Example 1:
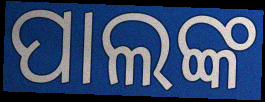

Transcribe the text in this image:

ପାଲଙ୍କ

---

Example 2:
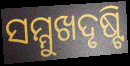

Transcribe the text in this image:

ସମ୍ମୁଖଦୃଷ୍ଟି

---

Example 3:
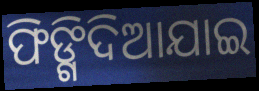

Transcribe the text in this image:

ଫିଙ୍ଗିଦିଆଯାଇ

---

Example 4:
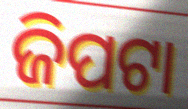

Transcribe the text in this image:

ଜିପଟା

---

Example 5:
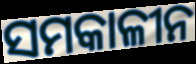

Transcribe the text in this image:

ସମକାଳୀନ